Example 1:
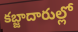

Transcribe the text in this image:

కబ్జాదారుల్లో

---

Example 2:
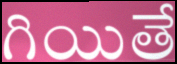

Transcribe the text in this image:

గియితే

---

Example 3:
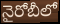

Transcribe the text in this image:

నైరోబీలో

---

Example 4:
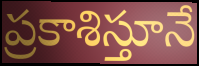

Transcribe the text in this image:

ప్రకాశిస్తూనే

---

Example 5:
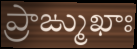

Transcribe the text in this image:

ప్రాఙ్ముఖాః